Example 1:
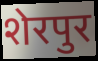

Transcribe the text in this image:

शेरपुर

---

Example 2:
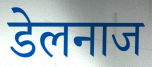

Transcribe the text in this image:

डेलनाज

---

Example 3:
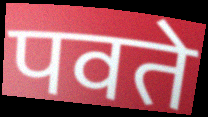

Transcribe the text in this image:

पवते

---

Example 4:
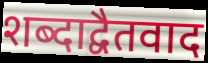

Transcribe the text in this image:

शब्दाद्वैतवाद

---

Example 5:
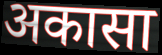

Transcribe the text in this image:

अकासा